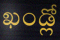
ఖండ్లో